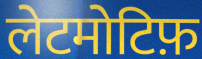
लेटमोटिफ़